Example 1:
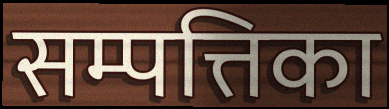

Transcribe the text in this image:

सम्पत्तिका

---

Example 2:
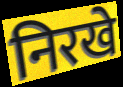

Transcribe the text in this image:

निरखे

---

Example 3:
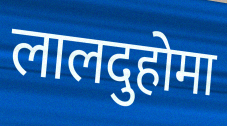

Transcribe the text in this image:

लालदुहोमा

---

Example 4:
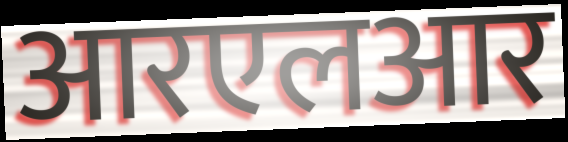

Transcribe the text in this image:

आरएलआर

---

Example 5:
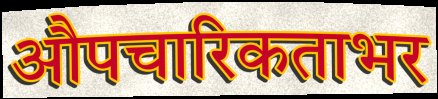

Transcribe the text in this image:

औपचारिकताभर